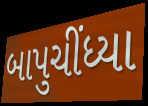
બાપુચીંધ્યા